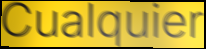
Cualquier